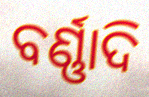
ବର୍ଣ୍ଣାଦି